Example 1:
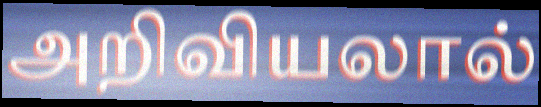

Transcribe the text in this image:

அறிவியலால்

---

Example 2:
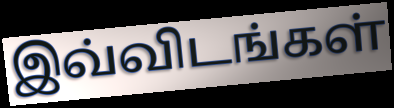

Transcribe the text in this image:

இவ்விடங்கள்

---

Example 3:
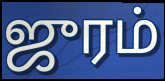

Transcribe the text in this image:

ஜுரம்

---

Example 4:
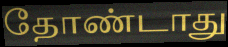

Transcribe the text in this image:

தோண்டாது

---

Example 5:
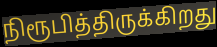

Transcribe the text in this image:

நிரூபித்திருக்கிறது